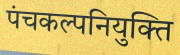
पंचकल्पनियुक्ति